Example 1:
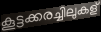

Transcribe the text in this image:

കൂട്ടക്കരച്ചിലുകള്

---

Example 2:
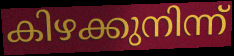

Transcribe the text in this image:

കിഴക്കുനിന്ന്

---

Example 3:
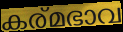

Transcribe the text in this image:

കര്മഭാവ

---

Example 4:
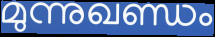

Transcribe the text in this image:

മുന്നുഖണ്ഡം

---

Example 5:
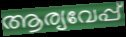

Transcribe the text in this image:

ആര്യവേപ്പ്